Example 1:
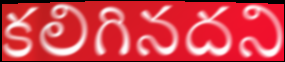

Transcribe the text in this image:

కలిగినదని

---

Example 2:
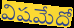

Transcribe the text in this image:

విషమేదో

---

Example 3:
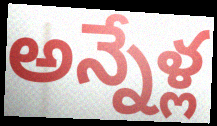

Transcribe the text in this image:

అన్నేళ్ల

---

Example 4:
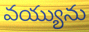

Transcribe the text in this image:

వయ్యును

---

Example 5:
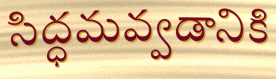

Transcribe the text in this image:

సిద్ధమవ్వడానికి